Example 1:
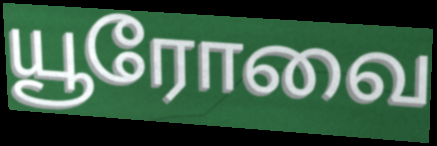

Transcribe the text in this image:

யூரோவை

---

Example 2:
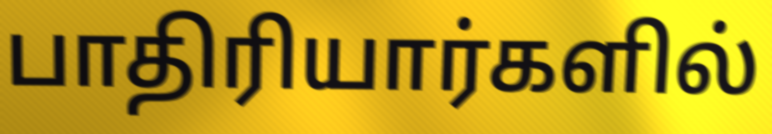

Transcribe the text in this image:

பாதிரியார்களில்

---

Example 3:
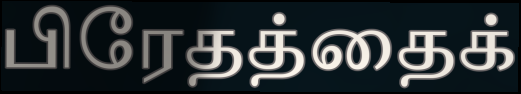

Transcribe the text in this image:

பிரேதத்தைக்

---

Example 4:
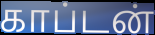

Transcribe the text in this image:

காப்டன்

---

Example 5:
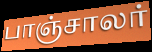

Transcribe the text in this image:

பாஞ்சாலர்